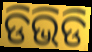
ଡିଭିଡି